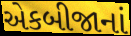
એકબીજાનાં